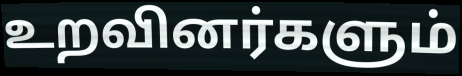
உறவினர்களும்